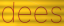
dees